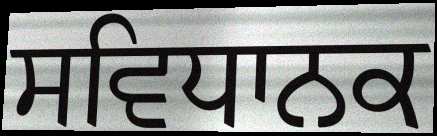
ਸਵਿਧਾਨਕ